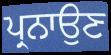
ਪ੍ਰਨਾਉਣ